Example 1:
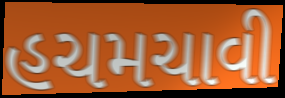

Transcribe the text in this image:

હચમચાવી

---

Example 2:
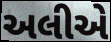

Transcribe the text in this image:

અલીએ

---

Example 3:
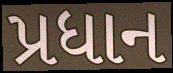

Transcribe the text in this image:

પ્રધાન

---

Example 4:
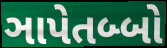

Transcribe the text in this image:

ઞાપેતબ્બો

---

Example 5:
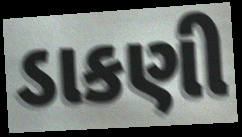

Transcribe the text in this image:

ડાકણી